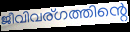
ജീവിവര്ഗത്തിന്റെ